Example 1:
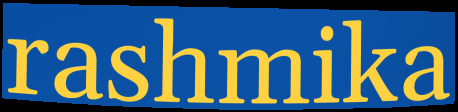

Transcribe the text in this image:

rashmika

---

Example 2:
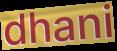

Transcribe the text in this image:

dhani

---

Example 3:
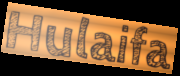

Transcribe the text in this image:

Hulaifa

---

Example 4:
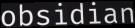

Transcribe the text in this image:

obsidian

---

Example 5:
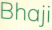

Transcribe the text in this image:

Bhaji